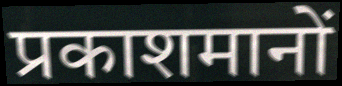
प्रकाशमानों